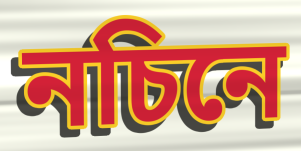
নচিনে